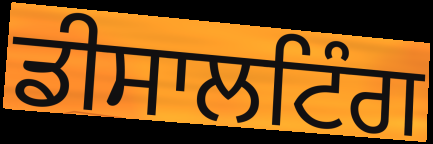
ਡੀਸਾਲਟਿੰਗ